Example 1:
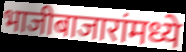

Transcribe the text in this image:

भाजीबाजारांमध्ये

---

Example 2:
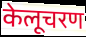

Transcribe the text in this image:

केलूचरण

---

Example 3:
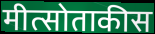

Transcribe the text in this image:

मीत्सोताकीस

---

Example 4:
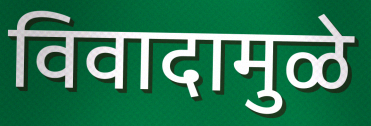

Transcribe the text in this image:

विवादामुळे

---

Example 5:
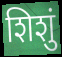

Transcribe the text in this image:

शिशुं